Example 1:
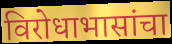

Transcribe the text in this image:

विरोधाभासांचा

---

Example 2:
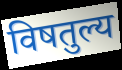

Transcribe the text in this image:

विषतुल्य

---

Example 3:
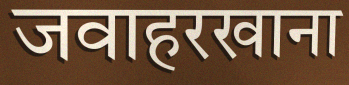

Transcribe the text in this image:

जवाहरखाना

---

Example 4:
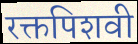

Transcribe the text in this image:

रक्तपिशवी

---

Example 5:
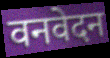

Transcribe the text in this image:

वनवेदन